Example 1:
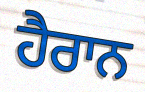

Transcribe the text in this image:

ਹੈਰਾਨ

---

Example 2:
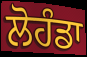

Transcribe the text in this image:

ਲੋਹੰਡਾ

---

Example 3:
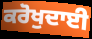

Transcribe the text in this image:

ਕਰੋਖੁਦਾਈ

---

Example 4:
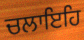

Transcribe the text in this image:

ਚਲਾਇਹਿ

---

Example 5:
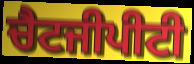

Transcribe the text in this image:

ਚੈਟਜੀਪੀਟੀ